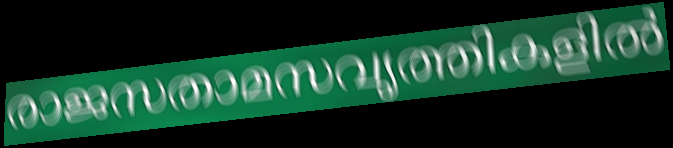
രാജസതാമസവൃത്തികളിൽ